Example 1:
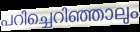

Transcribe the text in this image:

പറിച്ചെറിഞ്ഞാലും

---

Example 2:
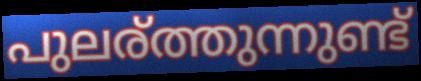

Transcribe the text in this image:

പുലര്ത്തുന്നുണ്ട്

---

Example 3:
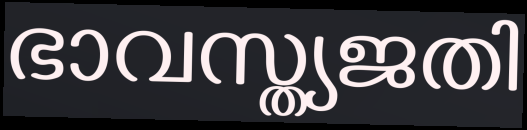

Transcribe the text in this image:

ഭാവസ്ത്യജതി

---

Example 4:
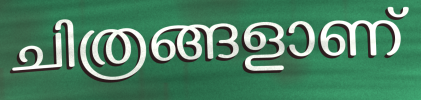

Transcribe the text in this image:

ചിത്രങ്ങളാണ്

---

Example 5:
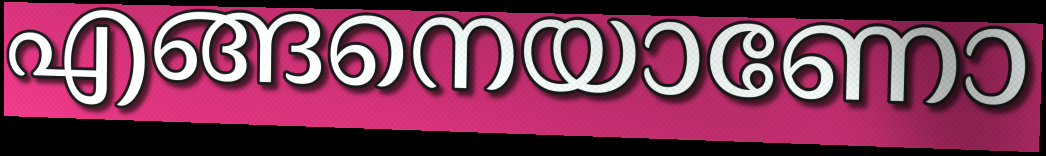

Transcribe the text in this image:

എങ്ങനെയാണോ